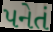
પનેતં